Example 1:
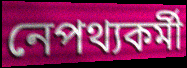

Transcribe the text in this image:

নেপথ্যকর্মী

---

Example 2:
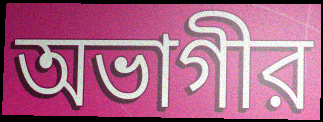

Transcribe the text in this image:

অভাগীর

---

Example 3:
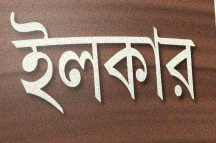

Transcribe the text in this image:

ইলকার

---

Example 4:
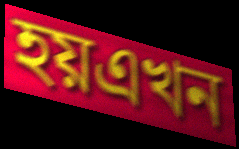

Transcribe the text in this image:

হয়এখন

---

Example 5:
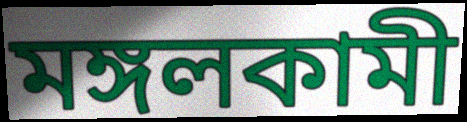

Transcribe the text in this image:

মঙ্গলকামী